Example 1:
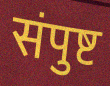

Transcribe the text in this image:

संपुष्ट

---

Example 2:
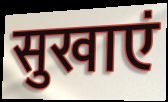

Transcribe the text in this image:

सुखाएं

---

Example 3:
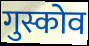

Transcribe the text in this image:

गुस्कोव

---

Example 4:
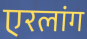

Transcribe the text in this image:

एरलांग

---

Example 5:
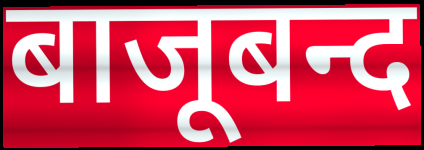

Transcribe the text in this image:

बाजूबन्द